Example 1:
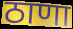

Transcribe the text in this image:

ठाणा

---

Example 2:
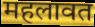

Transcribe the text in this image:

महलावत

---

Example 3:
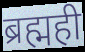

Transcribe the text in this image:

ब्रह्मही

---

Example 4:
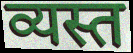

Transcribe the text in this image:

व्‍यस्‍त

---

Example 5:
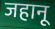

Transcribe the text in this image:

जहानू